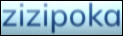
zizipoka